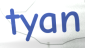
tyan